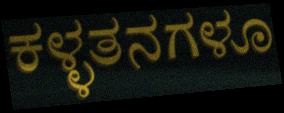
ಕಳ್ಳತನಗಳೂ